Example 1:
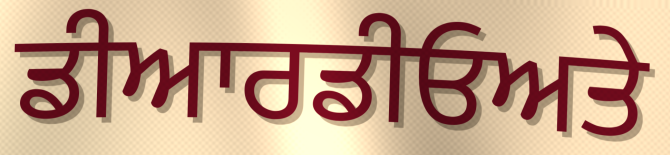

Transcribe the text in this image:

ਡੀਆਰਡੀਓਅਤੇ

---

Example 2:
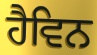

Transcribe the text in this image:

ਹੈਵਿਨ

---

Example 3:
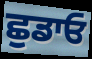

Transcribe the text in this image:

ਛੁਡਾਓ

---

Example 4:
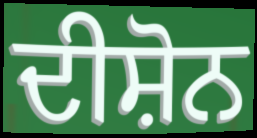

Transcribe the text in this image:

ਦੀਸ਼ੋਨ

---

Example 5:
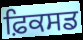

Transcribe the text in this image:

ਫ਼ਿਕਸਡ